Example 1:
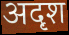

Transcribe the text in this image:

अदृश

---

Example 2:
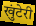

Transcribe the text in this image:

खुंटेरी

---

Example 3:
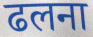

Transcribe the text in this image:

ढलना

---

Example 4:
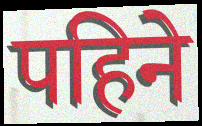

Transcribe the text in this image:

पहिने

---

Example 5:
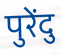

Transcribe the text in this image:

पुरेंदु